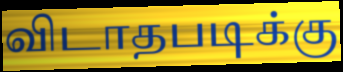
விடாதபடிக்கு